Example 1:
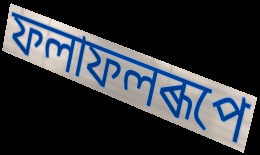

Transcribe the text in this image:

ফলাফলৰূপে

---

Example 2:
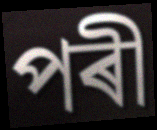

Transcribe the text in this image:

পৰী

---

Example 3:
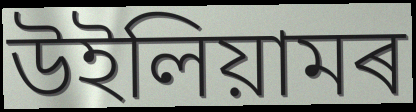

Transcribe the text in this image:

উইলিয়ামৰ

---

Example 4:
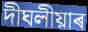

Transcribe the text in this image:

দীঘলীয়াৰ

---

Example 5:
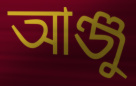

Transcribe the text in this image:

আঞ্জু